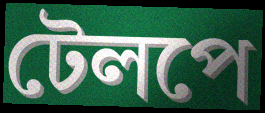
টেলপে